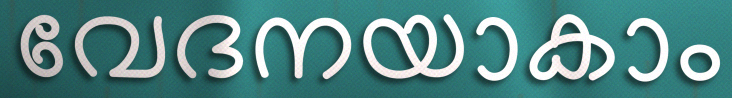
വേദനയാകാം